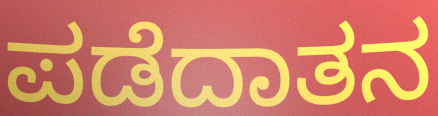
ಪಡೆದಾತನ